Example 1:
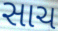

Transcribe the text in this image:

સાચ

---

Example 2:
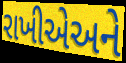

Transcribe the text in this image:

રાખીએઅને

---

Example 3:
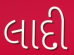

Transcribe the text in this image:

લાદી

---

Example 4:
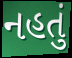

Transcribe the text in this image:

નહતું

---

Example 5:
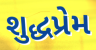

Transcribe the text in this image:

શુદ્ધપ્રેમ